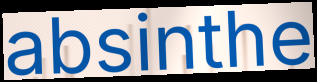
absinthe